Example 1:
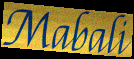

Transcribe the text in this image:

Mabali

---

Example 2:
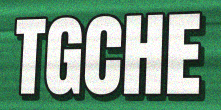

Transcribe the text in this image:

TGCHE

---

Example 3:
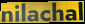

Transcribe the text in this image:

nilachal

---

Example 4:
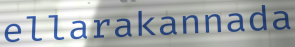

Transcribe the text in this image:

ellarakannada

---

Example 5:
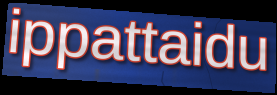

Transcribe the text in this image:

ippattaidu